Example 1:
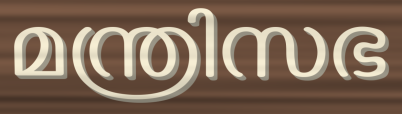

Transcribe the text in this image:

മന്ത്രിസഭ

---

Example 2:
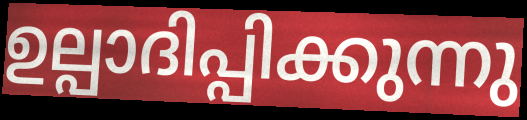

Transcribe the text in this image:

ഉല്പാദിപ്പിക്കുന്നു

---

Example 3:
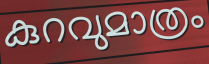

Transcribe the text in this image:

കുറവുമാത്രം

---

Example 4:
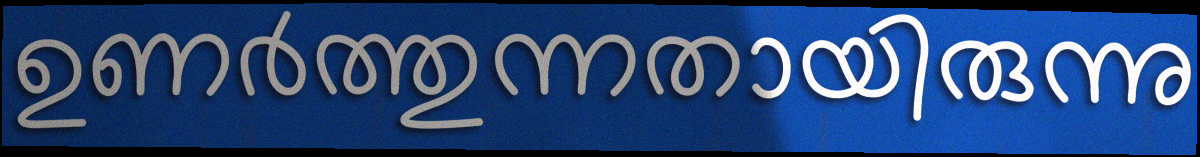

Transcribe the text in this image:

ഉണർത്തുന്നതായിരുന്നു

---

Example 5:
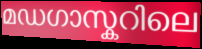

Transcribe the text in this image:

മഡഗാസ്കറിലെ